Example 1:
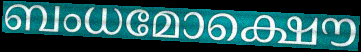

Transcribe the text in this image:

ബംധമോക്ഷൌ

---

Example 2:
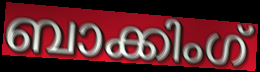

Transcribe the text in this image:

ബാക്കിംഗ്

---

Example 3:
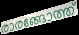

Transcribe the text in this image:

രാരങ്ങോത്ത്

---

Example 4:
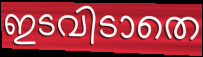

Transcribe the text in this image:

ഇടവിടാതെ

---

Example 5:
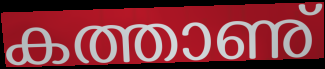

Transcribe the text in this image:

കത്താണു്